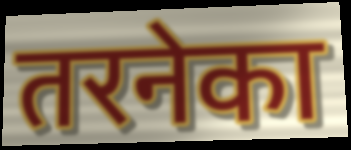
तरनेका